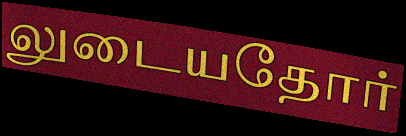
லுடையதோர்